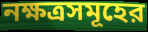
নক্ষত্রসমূহের